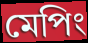
মেপিং